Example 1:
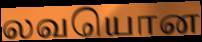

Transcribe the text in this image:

லவயொன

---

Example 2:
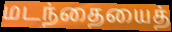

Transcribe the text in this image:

மடந்தையைத்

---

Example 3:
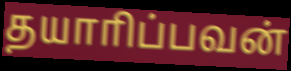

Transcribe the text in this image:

தயாரிப்பவன்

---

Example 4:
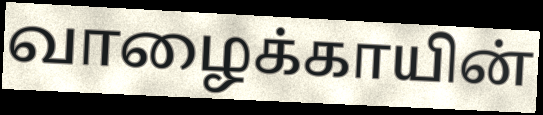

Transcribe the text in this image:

வாழைக்காயின்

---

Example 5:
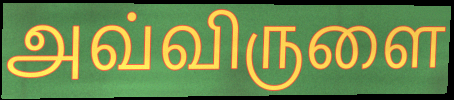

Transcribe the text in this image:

அவ்விருளை